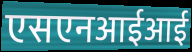
एसएनआईआई